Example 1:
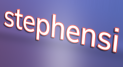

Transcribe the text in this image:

stephensi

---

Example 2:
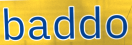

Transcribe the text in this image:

baddo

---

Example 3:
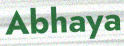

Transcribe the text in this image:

Abhaya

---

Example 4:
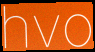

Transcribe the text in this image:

hvo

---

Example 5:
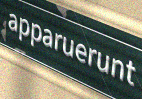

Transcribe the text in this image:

apparuerunt